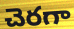
చెరగా